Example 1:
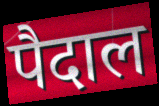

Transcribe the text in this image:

पैदाल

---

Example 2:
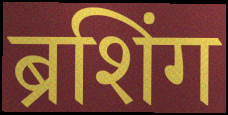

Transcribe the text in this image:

ब्रशिंग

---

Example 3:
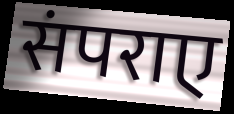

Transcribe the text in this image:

संपराए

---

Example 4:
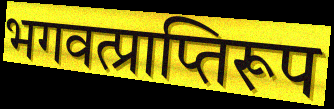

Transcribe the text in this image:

भगवत्प्राप्तिरूप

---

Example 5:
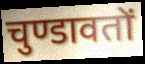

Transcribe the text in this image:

चुण्डावतों